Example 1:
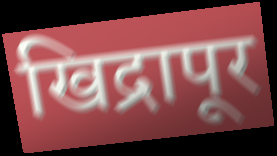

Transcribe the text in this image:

खिद्रापूर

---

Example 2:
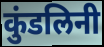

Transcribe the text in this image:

कुंडलिनी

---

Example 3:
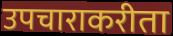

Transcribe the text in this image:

उपचाराकरीता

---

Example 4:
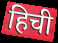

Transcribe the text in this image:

हिची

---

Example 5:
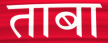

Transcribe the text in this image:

ताबा